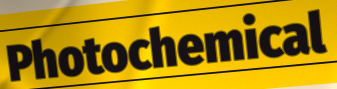
Photochemical